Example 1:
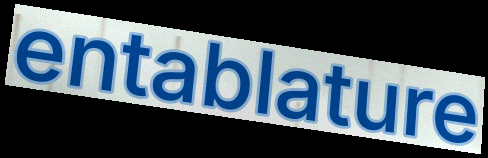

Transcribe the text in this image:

entablature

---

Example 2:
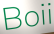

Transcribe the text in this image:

Boii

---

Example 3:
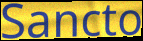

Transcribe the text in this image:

Sancto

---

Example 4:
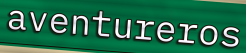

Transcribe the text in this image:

aventureros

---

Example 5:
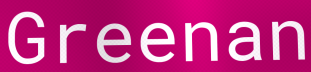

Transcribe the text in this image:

Greenan